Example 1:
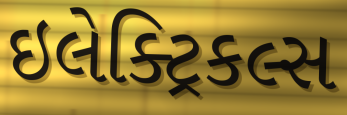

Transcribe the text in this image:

ઇલેક્ટ્રિકલ્સ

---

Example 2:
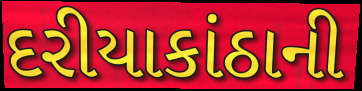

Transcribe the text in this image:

દરીયાકાંઠાની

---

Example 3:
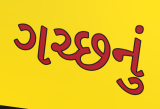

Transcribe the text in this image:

ગચ્છનું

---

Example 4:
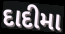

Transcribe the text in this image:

દાદીમા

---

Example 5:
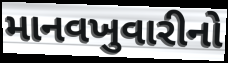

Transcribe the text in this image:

માનવખુવારીનો